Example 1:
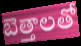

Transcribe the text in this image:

బెత్తాలతో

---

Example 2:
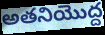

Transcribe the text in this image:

అతనియొద్ద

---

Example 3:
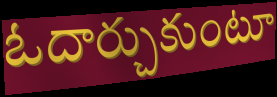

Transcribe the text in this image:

ఓదార్చుకుంటూ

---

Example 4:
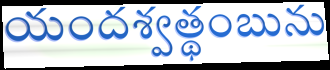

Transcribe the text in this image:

యందశ్వత్థంబును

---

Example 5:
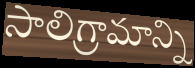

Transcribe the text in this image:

సాలిగ్రామాన్ని